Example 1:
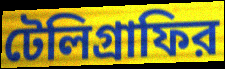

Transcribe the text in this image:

টেলিগ্রাফির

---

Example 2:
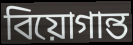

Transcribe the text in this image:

বিয়োগান্ত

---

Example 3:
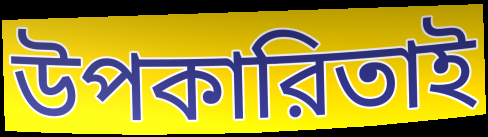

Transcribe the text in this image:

উপকারিতাই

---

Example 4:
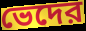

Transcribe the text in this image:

ভেদের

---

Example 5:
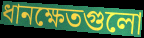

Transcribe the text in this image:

ধানক্ষেতগুলো